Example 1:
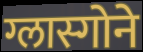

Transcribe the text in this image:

ग्लास्गोने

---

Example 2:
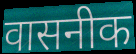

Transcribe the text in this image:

वासनीक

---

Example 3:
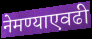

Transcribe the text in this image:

नेमण्याएवढी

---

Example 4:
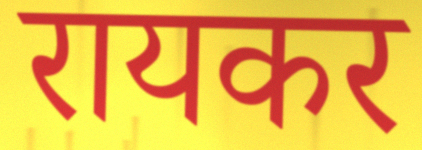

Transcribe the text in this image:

रायकर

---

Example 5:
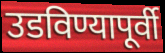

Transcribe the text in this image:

उडविण्यापूर्वी